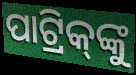
ପାଟ୍ରିକ୍‌ଙ୍କୁ